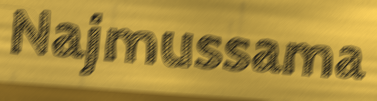
Najmussama